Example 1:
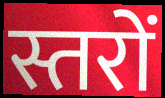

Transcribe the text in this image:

स्तरों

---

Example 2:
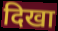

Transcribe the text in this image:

दिखा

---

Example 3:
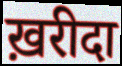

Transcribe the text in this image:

ख़रीदा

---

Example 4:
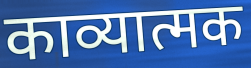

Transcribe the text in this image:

काव्यात्मक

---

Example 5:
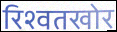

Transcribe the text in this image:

रिश्वतखोर